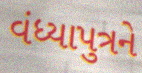
વંધ્યાપુત્રને